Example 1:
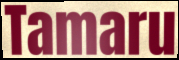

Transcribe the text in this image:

Tamaru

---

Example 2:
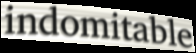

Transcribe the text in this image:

indomitable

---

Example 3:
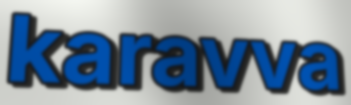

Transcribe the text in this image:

karavva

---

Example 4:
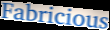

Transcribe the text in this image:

Fabricious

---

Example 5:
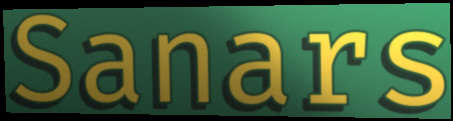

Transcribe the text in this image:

Sanars